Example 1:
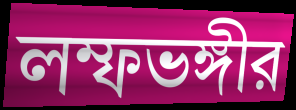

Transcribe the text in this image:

লম্ফভঙ্গীর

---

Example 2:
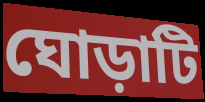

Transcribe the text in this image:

ঘোড়াটি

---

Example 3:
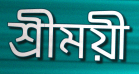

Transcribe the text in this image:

শ্রীময়ী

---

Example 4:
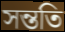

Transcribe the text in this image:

সন্ততি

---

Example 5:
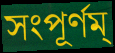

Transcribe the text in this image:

সংপূর্ণম্